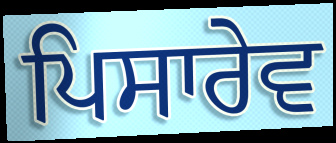
ਪਿਸਾਰੇਵ